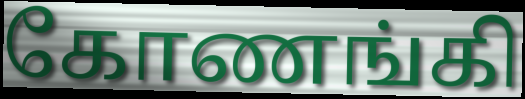
கோணங்கி